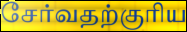
சேர்வதற்குரிய